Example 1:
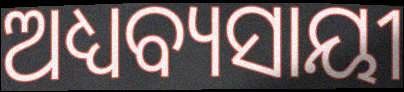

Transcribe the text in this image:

ଅଧ୍ୟବ୍ୟସାୟୀ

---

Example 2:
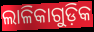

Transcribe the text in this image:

ଲାଳିକାଗୁଡ଼ିକ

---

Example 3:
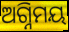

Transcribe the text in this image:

ଅଗ୍ନିମୟ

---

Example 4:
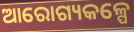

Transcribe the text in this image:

ଆରୋଗ୍ୟକଳ୍ପେ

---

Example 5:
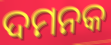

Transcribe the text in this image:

ଦମନକ